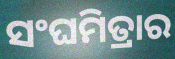
ସଂଘମିତ୍ରାର